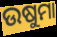
ଉଷୁମା